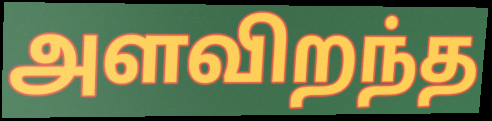
அளவிறந்த